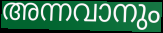
അന്നവാനും